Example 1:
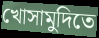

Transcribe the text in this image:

খোসামুদিতে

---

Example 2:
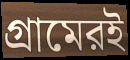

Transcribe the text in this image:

গ্রামেরই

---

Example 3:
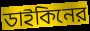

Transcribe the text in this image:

ডাইকিনের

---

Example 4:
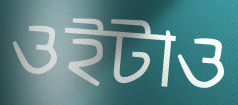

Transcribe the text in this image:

ওইটাও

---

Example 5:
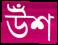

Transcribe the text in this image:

উঁশ